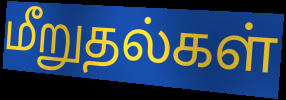
மீறுதல்கள்